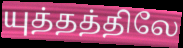
யுத்தத்திலே